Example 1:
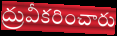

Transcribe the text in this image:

ద్రువీకరించారు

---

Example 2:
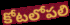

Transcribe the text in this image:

కోటలోపలి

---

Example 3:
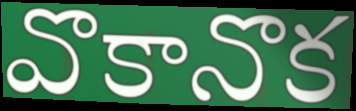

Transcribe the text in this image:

వొకానొక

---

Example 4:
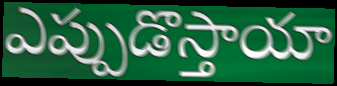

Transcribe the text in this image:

ఎప్పుడొస్తాయా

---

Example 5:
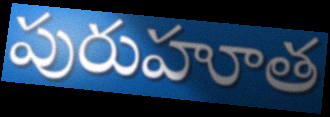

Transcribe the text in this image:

పురుహూత